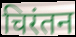
चिरंतन